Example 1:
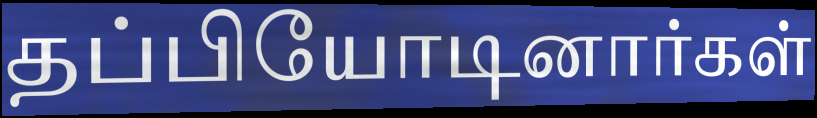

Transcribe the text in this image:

தப்பியோடினார்கள்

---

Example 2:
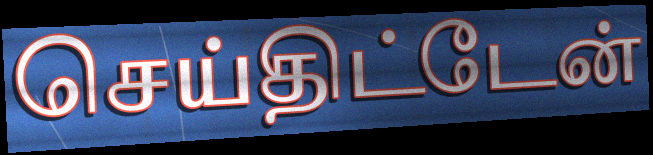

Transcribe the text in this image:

செய்திட்டேன்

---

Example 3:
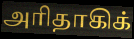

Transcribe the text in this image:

அரிதாகிக்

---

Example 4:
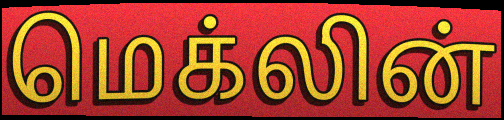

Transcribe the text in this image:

மெக்லின்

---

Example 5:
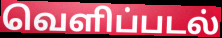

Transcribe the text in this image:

வெளிப்படல்